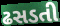
ઢસડતી